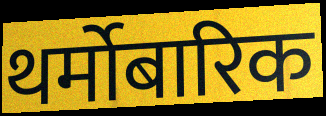
थर्मोबारिक